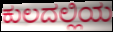
ಕುಲದಲ್ಲಿಯ